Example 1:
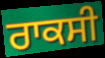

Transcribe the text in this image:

ਰਾਕਸੀ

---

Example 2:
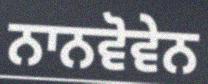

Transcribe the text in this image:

ਨਾਨਵੋਵੇਨ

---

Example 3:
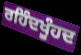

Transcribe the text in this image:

ਰਹਿੰਦਖੂੰਹਦ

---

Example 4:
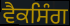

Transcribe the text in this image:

ਵੈਕਸਿੰਗ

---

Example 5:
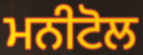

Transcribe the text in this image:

ਮਨੀਟੋਲ